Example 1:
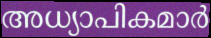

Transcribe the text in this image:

അധ്യാപികമാർ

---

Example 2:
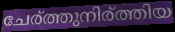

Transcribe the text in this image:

ചേര്ത്തുനിര്ത്തിയ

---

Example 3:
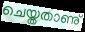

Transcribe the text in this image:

ചെയ്തതാണു്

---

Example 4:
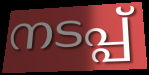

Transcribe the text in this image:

നടപ്പ്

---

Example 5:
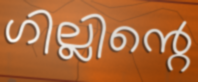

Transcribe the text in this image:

ഗില്ലിന്റെ